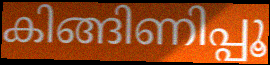
കിങ്ങിണിപ്പൂ